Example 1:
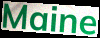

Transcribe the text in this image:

Maine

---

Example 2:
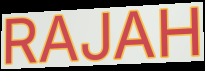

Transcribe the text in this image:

RAJAH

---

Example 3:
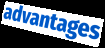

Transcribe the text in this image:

advantages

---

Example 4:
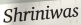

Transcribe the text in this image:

Shriniwas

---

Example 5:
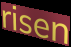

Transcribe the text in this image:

risen